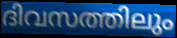
ദിവസത്തിലും